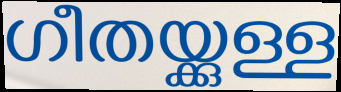
ഗീതയ്ക്കുള്ള